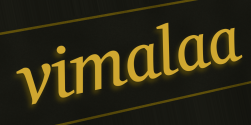
vimalaa